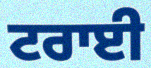
ਟਰਾਈ